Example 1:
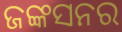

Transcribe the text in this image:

ଜଙ୍କସନର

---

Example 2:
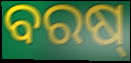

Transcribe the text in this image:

ବରଷ୍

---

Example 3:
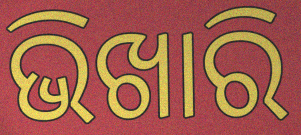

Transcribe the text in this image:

ଭିଖାରି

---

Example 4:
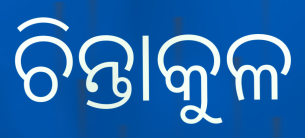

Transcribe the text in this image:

ଚିନ୍ତାକୁଳ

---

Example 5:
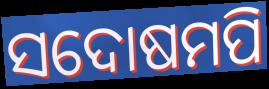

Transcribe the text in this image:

ସଦୋଷମପି